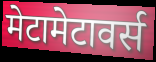
मेटामेटावर्स